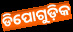
ଡିପୋଗୁଡ଼ିକ